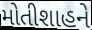
મોતીશાહને